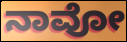
ನಾವೋ